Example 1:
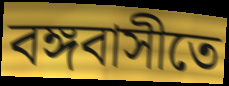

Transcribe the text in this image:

বঙ্গবাসীতে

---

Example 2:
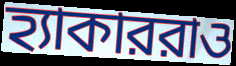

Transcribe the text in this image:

হ্যাকাররাও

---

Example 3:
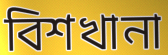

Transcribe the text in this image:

বিশখানা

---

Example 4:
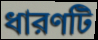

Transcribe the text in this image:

ধারণটি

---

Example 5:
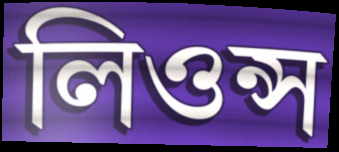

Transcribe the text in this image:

লিওন্স